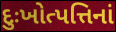
દુઃખોત્પત્તિનાં